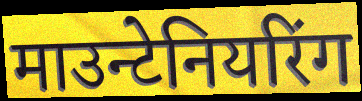
माउन्टेनियरिंग